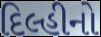
દિલ્હીનો